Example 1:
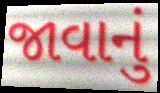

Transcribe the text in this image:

જાવાનું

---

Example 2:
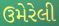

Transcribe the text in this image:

ઉમેરેલી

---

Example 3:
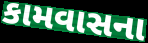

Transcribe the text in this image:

કામવાસના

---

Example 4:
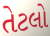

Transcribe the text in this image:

તેટલો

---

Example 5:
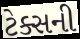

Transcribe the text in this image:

ટેક્સની